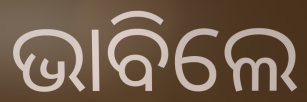
ଭାବିଲେ